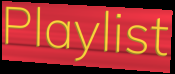
Playlist